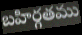
బహిర్గతము